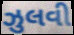
ઝુલવી